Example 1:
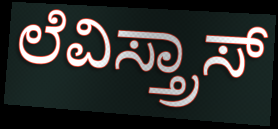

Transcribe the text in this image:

ಲೆವಿಸ್ತ್ರಾಸ್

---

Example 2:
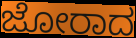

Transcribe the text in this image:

ಜೋರಾದ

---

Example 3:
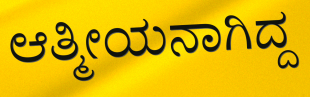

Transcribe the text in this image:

ಆತ್ಮೀಯನಾಗಿದ್ದ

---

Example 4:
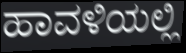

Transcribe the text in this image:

ಹಾವಳಿಯಲ್ಲಿ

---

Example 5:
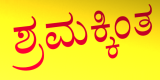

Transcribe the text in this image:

ಶ್ರಮಕ್ಕಿಂತ